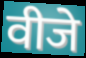
वीजे